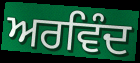
ਅਰਵਿੰਦ